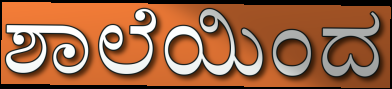
ಶಾಲೆಯಿಂದ